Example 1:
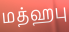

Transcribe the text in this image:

மத்ஹபு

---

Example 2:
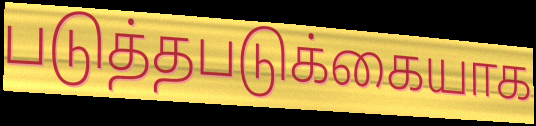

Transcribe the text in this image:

படுத்தபடுக்கையாக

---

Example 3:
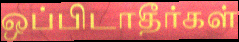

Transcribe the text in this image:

ஒப்பிடாதீர்கள்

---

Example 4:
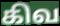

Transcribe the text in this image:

கிவ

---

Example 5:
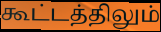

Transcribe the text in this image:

கூட்டத்திலும்